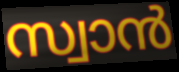
സ്വാൻ